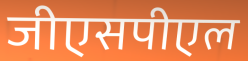
जीएसपीएल